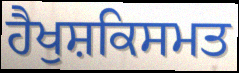
ਹੈਖੁਸ਼ਕਿਸਮਤ